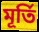
মূর্তি